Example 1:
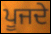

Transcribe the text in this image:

ਪੂਜਦੇ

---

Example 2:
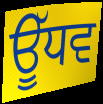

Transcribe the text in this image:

ਊੱਧਵ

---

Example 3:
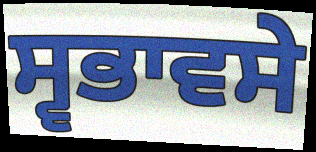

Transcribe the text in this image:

ਸ੍ਵਭਾਵਸੇ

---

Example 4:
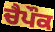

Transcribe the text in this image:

ਚੈਪੌਕ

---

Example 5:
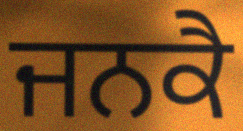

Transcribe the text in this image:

ਜਨਕੈ